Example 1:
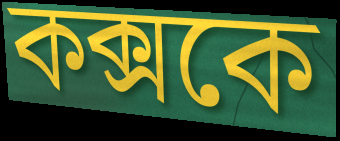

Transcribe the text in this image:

কক্সকে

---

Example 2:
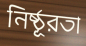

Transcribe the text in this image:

নিষ্ঠূরতা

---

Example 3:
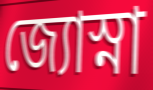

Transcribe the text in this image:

জ্যোস্না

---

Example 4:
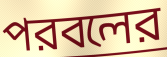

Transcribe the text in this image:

পরবলের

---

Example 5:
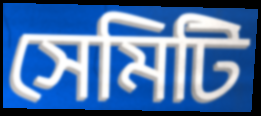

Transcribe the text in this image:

সেমিটি